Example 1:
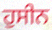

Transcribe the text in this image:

ਹੁਸੀਨ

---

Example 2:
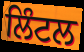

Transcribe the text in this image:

ਲਿੰਟਲ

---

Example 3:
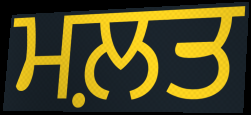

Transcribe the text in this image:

ਮਲ਼ਤ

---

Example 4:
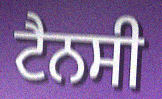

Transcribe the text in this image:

ਟੈਨਸੀ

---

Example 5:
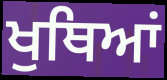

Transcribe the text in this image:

ਖੁਥਿਆਂ